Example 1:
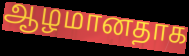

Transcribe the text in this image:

ஆழமானதாக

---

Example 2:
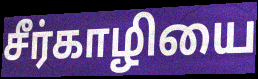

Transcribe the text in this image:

சீர்காழியை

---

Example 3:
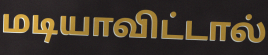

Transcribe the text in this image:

மடியாவிட்டால்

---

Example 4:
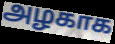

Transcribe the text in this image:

அழகாக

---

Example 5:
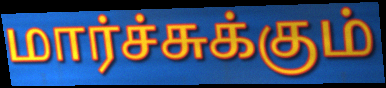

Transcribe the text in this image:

மார்ச்சுக்கும்